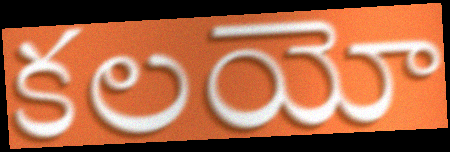
కలయో